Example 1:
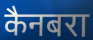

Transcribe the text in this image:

कैनबरा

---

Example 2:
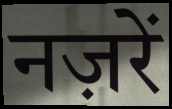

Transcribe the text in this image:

नज़रें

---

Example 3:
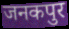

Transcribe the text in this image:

जनकपुर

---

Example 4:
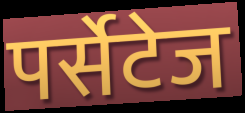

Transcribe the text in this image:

पर्सेटेज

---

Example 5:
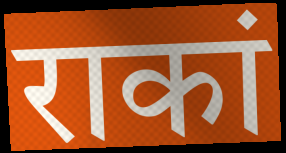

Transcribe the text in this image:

राकां